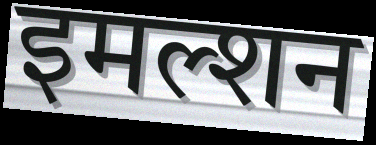
इमल्शन